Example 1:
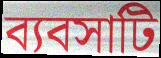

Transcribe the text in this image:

ব্যবসাটি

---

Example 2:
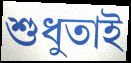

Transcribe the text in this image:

শুধুতাই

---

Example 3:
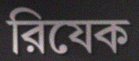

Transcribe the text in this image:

রিযেক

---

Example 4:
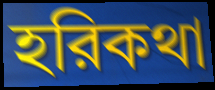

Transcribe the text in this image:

হরিকথা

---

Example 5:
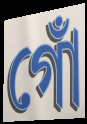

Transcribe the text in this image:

গোঁ